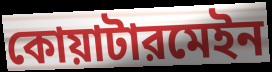
কোয়াটারমেইন